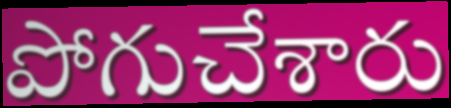
పోగుచేశారు